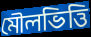
মৌলভিত্তি